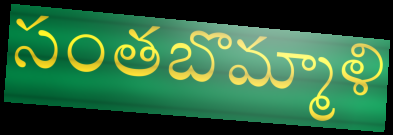
సంతబొమ్మాళి